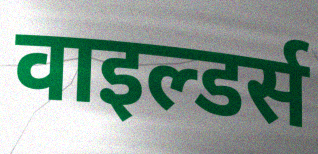
वाइल्डर्स